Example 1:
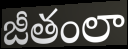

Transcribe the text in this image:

జీతంలా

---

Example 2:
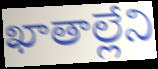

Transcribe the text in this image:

ఖాతాల్లేని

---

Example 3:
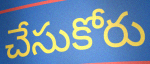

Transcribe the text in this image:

చేసుకోరు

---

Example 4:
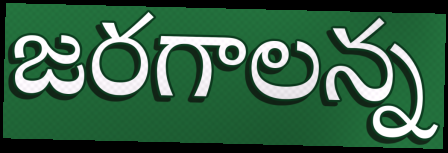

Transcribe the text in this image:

జరగాలన్న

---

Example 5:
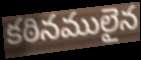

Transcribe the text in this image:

కఠినములైన